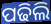
ପଢିଲି